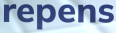
repens